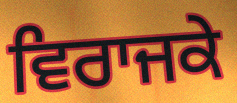
ਵਿਰਾਜਕੇ